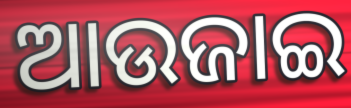
ଆଉଜାଇ